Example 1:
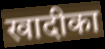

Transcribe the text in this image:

खादीका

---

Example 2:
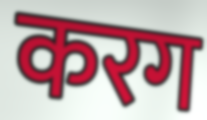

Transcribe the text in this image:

करग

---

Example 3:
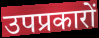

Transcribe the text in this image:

उपप्रकारों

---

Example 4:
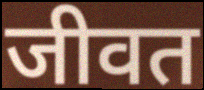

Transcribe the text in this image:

जीवत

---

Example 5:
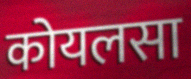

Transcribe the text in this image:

कोयलसा